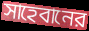
সাহেবানের